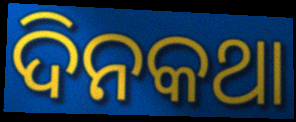
ଦିନକଥା